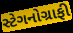
સ્ટેગનોગ્રાફી